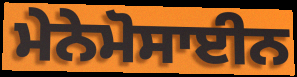
ਮੇਨੇਮੋਸਾਈਨ